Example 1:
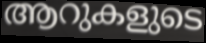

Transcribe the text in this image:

ആറുകളുടെ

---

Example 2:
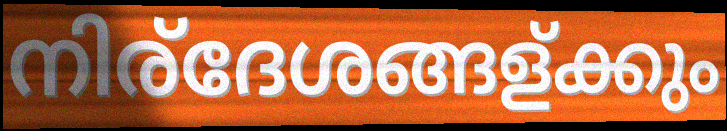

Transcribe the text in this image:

നിര്ദേശങ്ങള്ക്കും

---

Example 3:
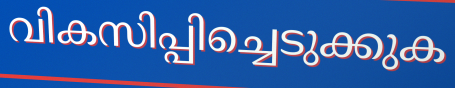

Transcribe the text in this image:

വികസിപ്പിച്ചെടുക്കുക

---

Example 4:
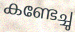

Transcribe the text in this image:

കണ്ടേച്ചു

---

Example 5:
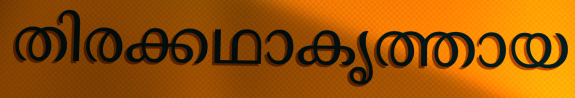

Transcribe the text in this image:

തിരക്കഥാകൃത്തായ